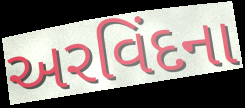
અરવિંદના